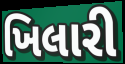
ખિલારી